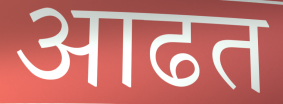
आढत